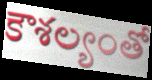
కౌశల్యంతో